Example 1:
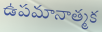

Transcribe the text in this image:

ఉపమానాత్మక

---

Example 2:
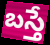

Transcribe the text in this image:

బస్తే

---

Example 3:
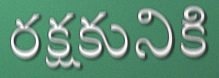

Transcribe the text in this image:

రక్షకునికి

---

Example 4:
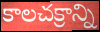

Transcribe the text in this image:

కాలచక్రాన్ని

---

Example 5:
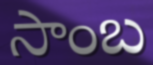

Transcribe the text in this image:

సాంబ